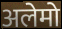
अलेमो